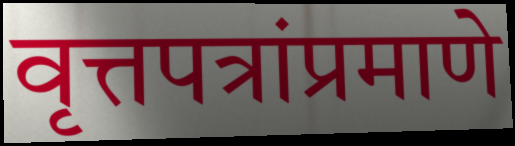
वृत्तपत्रांप्रमाणे